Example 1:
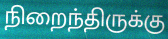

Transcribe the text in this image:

நிறைந்திருக்கு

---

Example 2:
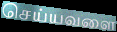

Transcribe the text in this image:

செய்யவளை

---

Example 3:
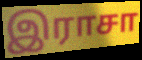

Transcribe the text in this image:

இராசா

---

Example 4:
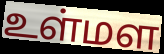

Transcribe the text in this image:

உள்மள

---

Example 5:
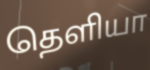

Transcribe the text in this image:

தெளியா